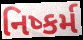
નિષ્કર્મ